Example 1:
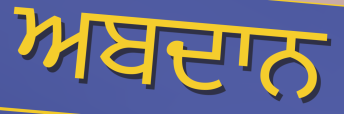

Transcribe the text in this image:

ਅਬਦਾਨ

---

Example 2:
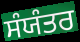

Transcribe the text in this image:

ਸੰਯੰਤਰ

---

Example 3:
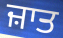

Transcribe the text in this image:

ਜ਼ਾਤ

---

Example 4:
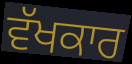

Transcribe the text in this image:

ਵੱਖਕਾਰ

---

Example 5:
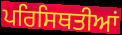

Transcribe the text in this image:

ਪਰਿਸਿਥਤੀਆਂ